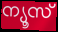
ന്യൂസ്